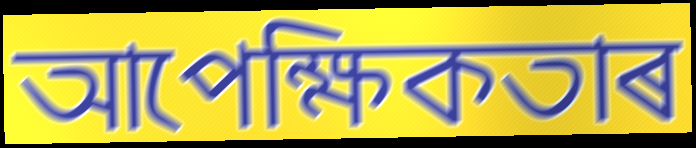
আপেক্ষিকতাৰ